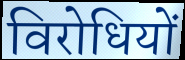
विरोधियों